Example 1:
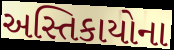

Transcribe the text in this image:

અસ્તિકાયોના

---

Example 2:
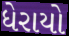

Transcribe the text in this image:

ધેરાયો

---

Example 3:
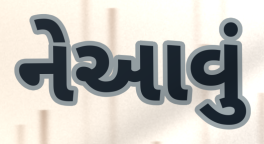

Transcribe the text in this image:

નેઆવું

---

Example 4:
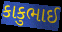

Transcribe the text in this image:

કાકુભાઈ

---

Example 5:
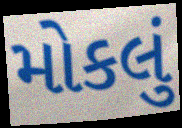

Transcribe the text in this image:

મોકલું